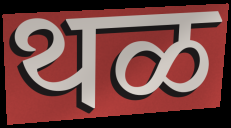
थळ